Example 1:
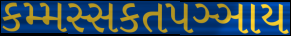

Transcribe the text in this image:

કમ્મસ્સકતપઞ્ઞાય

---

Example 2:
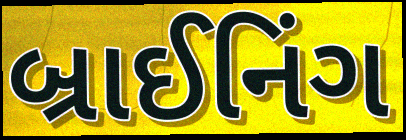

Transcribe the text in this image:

બ્રાઈનિંગ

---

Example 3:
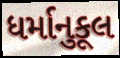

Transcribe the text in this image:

ધર્માનુકૂલ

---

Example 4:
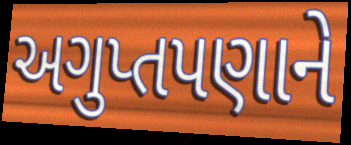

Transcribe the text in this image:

અગુપ્તપણાને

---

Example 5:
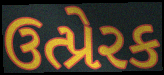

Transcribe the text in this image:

ઉત્પ્રેરક